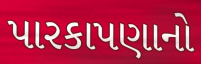
પારકાપણાનો